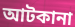
আটকানা